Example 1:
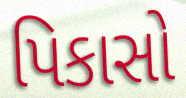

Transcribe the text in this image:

પિકાસો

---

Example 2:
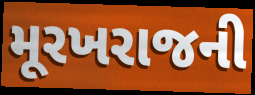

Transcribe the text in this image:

મૂરખરાજની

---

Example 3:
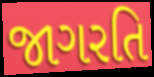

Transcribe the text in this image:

જાગરતિ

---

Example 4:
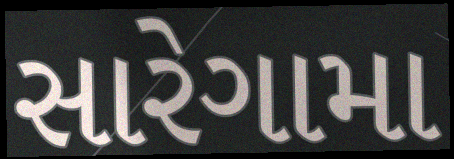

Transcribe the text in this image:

સારેગામા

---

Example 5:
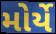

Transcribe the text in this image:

મોર્યે